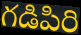
గడిపిరి